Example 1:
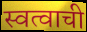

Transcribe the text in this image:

स्वत्वाची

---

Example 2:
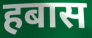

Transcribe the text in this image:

हबास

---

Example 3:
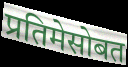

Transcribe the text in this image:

प्रतिमेसोबत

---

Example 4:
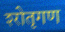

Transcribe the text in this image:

श्रोतृगण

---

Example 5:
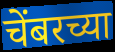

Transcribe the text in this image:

चेंबरच्या